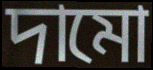
দামো